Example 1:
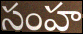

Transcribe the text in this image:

సంహ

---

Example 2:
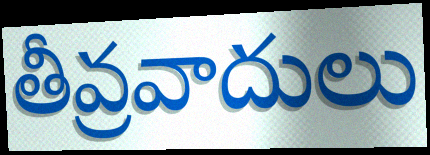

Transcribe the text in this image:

తీవ్రవాదులు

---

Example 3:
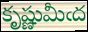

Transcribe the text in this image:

కృష్ణుమీఁద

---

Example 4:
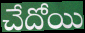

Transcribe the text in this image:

చేదోయి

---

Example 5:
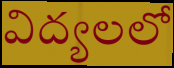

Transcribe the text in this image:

విద్యలలో